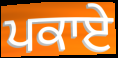
ਪਕਾਏ